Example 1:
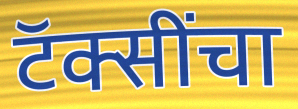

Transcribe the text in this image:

टॅक्सींचा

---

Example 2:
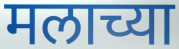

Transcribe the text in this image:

मलाच्या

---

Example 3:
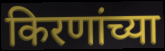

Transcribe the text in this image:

किरणांच्या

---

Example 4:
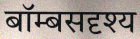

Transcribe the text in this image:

बॉम्बसदृश्य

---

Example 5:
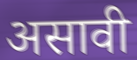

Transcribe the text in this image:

असावी